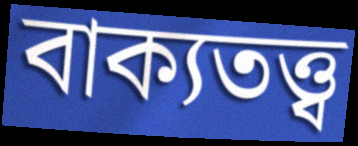
বাক্যতত্ত্ব